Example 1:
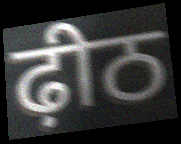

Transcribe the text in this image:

ढ़ीठ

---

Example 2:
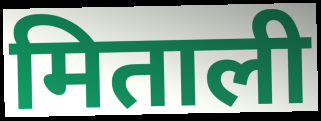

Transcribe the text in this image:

मिताली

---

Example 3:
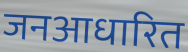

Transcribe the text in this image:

जनआधारित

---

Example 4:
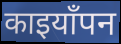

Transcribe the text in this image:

काइयाँपन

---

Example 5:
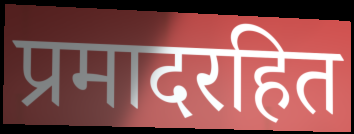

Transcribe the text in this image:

प्रमादरहित